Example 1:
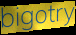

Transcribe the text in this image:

bigotry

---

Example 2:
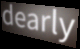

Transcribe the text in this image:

dearly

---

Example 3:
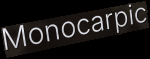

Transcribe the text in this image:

Monocarpic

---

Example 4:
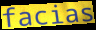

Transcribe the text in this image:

facias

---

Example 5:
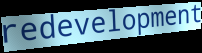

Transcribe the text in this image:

redevelopment